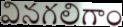
వినగలిగాం